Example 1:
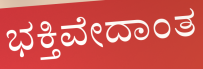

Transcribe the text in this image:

ಭಕ್ತಿವೇದಾಂತ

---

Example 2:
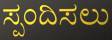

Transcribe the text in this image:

ಸ್ಪಂದಿಸಲು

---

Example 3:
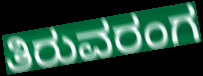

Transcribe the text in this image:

ತಿರುವರಂಗ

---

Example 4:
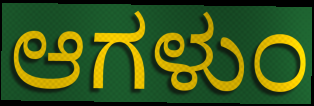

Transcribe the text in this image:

ಆಗಳುಂ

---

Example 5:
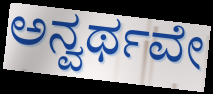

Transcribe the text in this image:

ಅನ್ವರ್ಥವೇ